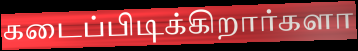
கடைப்பிடிக்கிறார்களா